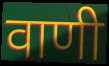
वाणी